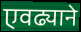
एवढ्याने